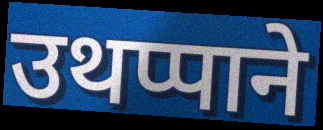
उथप्पाने